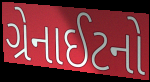
ગ્રેનાઈટનો